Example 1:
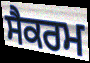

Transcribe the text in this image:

ਸੈਕਰਮ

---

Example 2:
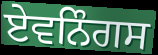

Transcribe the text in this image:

ਏਵਨਿੰਗਸ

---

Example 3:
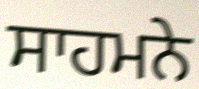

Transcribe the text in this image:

ਸਾਹਮਨੇ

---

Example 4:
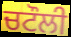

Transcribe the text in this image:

ਚਟੌਲੀ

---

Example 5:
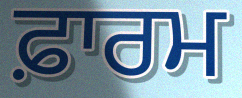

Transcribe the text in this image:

ਫ਼ਾਰਮ